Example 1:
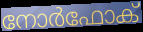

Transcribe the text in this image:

നോർഫോക്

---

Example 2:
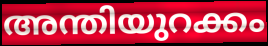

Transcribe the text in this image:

അന്തിയുറക്കം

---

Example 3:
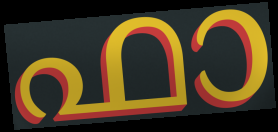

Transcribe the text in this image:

ഫാ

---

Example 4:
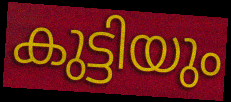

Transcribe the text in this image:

കുട്ടിയും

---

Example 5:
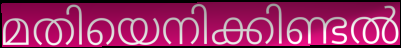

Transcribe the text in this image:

മതിയെനിക്കിണ്ടൽ